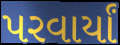
પરવાર્યાં